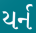
યર્ન